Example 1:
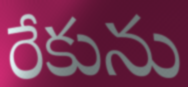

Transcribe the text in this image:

రేకును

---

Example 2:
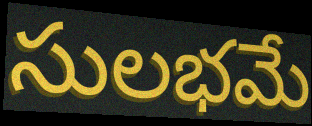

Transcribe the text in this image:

సులభమే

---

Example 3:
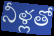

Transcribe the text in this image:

నీళ్లతో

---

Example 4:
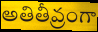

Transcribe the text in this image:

అతితీవ్రంగా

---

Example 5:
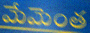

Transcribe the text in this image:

మేమెంత